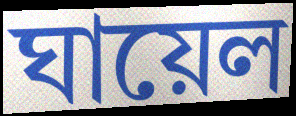
ঘায়েল